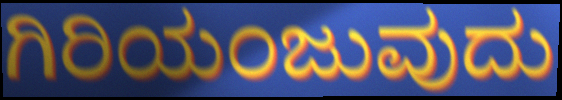
ಗಿರಿಯಂಜುವುದು